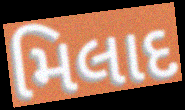
મિલાદ